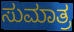
ಸುಮಾತ್ರ